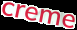
creme